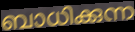
ബാധിക്കുന്ന